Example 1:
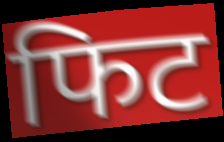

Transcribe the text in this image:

फिट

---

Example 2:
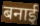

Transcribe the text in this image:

बनाई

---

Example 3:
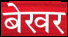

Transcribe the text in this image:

बेखर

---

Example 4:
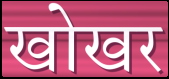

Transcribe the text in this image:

खोखर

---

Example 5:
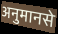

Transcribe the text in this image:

अनुमानसे